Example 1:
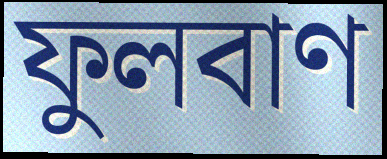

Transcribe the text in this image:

ফুলবাণ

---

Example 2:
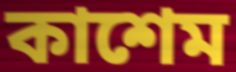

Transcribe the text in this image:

কাশেম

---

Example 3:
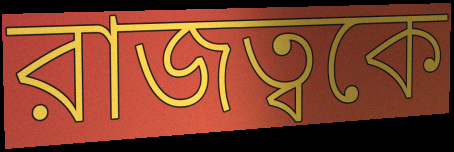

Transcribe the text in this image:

রাজত্বকে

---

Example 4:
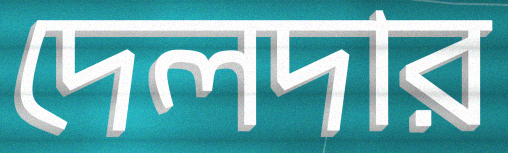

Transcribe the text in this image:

দেলদার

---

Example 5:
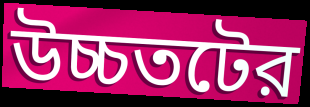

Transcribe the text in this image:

উচ্চতটের